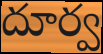
దూర్వ